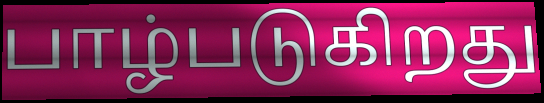
பாழ்படுகிறது